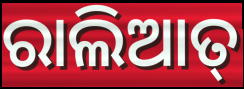
ରାଲିଆତ୍